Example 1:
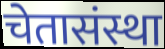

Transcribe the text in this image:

चेतासंस्था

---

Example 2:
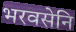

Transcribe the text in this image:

भरवसेनि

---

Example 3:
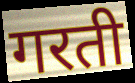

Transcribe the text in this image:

गरती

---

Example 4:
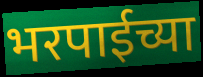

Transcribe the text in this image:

भरपाईच्या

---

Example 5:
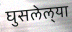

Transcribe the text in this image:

घुसलेल्या